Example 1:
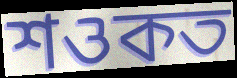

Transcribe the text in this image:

শওকত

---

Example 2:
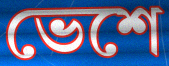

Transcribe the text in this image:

ভেশে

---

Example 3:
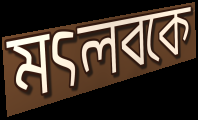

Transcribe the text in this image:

মৎলবকে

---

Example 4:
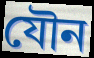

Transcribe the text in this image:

যৌন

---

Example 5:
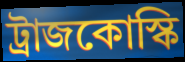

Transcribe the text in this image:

ট্রাজকোস্কি